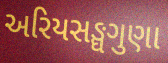
અરિયસઙ્ઘગુણા